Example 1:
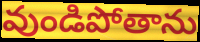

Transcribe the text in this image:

వుండిపోతాను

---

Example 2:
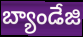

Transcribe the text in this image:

బ్యాండేజి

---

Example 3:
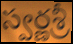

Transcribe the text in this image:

స్వర్ణశ్రీ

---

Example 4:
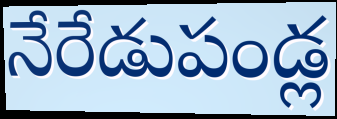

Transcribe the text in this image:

నేరేడుపండ్ల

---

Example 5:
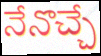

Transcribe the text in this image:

నేనొచ్చే